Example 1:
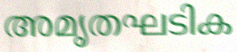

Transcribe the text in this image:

അമൃതഘടിക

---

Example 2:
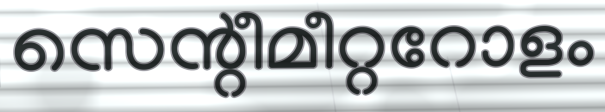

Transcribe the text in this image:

സെന്റീമീറ്ററോളം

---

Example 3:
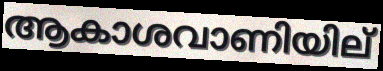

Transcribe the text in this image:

ആകാശവാണിയില്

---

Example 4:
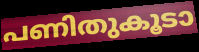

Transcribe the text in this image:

പണിതുകൂടാ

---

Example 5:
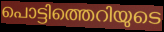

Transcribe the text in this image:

പൊട്ടിത്തെറിയുടെ